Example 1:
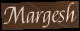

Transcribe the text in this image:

Margesh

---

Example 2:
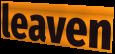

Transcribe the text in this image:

leaven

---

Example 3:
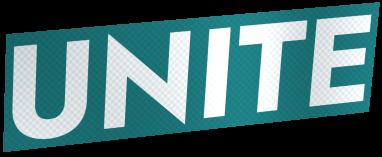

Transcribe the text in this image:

UNITE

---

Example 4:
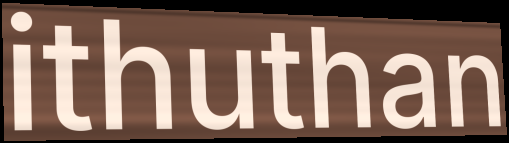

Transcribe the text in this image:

ithuthan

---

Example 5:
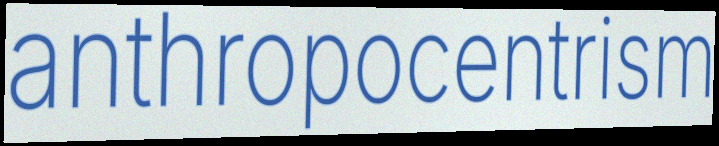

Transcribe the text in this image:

anthropocentrism